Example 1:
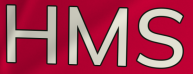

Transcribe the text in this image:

HMS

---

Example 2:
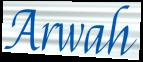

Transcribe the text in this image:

Arwah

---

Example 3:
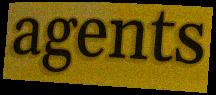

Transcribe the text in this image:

agents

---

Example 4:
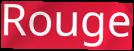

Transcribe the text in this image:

Rouge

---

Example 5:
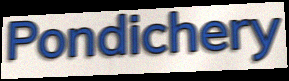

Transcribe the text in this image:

Pondichery